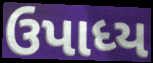
ઉપાધ્ય